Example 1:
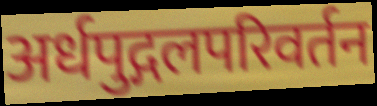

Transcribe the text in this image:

अर्धपुद्गलपरिवर्तन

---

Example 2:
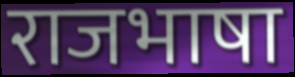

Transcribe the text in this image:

राजभाषा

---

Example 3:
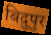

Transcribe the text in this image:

बिदुपुर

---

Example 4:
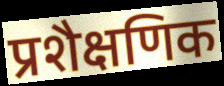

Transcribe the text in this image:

प्रशैक्षणिक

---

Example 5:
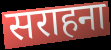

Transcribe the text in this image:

सराहना